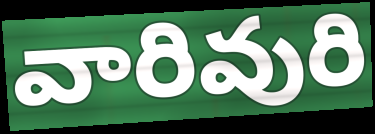
వారివురి